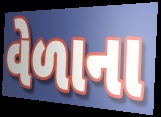
વેળાના